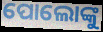
ପୋଲୋଙ୍କୁ